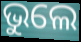
ଭୁଲେ